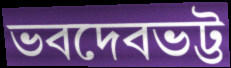
ভবদেবভট্ট